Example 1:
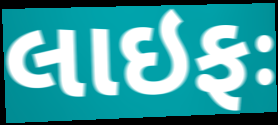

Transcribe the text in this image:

લાઇફઃ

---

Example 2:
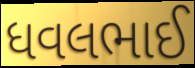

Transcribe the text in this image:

ધવલભાઈ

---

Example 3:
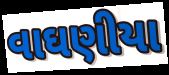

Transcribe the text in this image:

વાઘણીયા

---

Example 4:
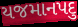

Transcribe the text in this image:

યજમાનપદુ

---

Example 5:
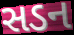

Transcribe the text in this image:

સડન